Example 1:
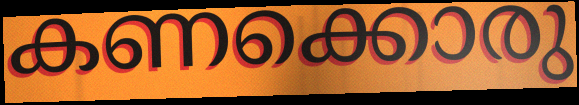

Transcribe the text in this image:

കണക്കൊരു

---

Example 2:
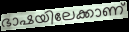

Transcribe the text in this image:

ഭാഷയിലേക്കാണ്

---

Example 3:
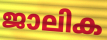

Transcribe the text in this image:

ജാലിക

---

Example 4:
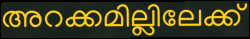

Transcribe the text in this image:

അറക്കമില്ലിലേക്ക്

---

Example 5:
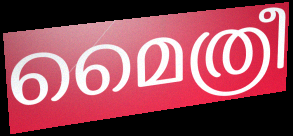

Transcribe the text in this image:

മൈത്രീ